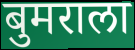
बुमराला